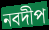
নবদীপ